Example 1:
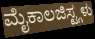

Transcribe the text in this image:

ಮೈಕಾಲಜಿಸ್ಟ್ಗಳು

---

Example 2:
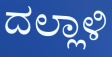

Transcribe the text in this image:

ದಲ್ಲಾಳಿ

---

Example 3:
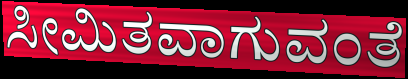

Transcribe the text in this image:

ಸೀಮಿತವಾಗುವಂತೆ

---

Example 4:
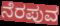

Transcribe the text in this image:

ನೆರಪುವ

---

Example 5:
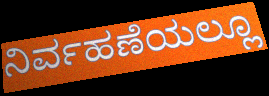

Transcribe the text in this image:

ನಿರ್ವಹಣೆಯಲ್ಲೂ